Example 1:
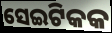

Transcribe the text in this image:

ସେଇଟିକକ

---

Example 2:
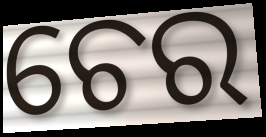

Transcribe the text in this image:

ଚେର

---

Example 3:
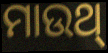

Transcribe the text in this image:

ମାଉଥ୍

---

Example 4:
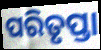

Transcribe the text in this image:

ପରିତୃପ୍ତା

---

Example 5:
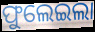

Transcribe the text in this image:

ଫୁଲେଇଲା